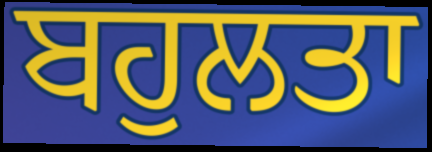
ਬਹੁਲਤਾ